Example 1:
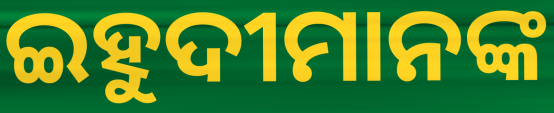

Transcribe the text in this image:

ଇହୁଦୀମାନଙ୍କ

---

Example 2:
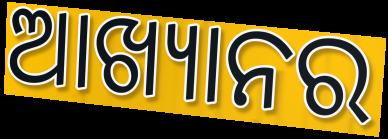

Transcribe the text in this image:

ଆଖ୍ୟାନର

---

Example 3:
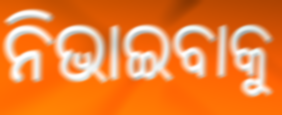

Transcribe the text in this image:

ନିଭାଇବାକୁ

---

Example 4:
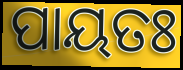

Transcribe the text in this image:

ପାୟତଃ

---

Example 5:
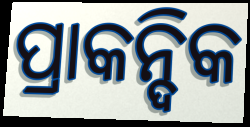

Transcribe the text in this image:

ପ୍ରାକନ୍ଦିକ